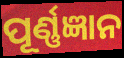
ପୂର୍ଣ୍ଣଜ୍ଞାନ